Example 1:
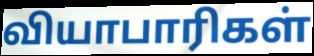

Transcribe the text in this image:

வியாபாரிகள்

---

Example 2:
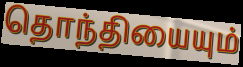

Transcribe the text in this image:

தொந்தியையும்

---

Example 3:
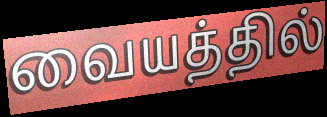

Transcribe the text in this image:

வையத்தில்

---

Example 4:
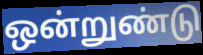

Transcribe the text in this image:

ஒன்றுண்டு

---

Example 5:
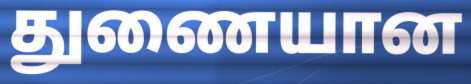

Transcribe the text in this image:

துணையான